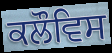
ਕਲੌਵਿਸ